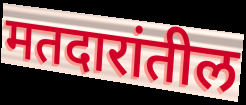
मतदारांतील